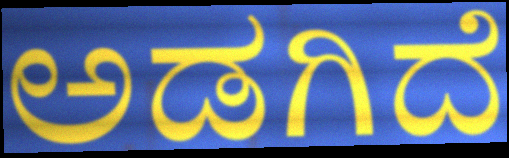
ಅಡಗಿದೆ